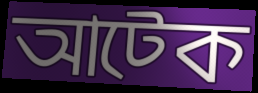
আট্কে